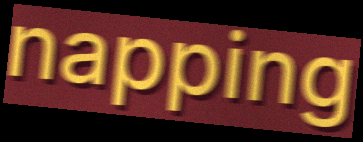
napping